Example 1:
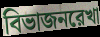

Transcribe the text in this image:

বিভাজনরেখা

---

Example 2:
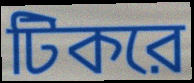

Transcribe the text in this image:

টিকরে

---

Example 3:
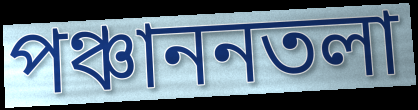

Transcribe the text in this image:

পঞ্চাননতলা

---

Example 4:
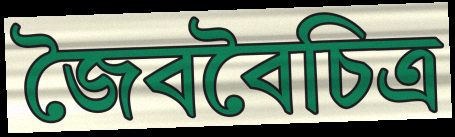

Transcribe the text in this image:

জৈববৈচিত্র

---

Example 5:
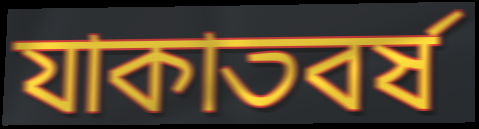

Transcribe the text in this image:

যাকাতবর্ষ